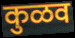
कुळव